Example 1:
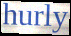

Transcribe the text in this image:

hurly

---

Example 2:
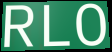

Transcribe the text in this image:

RLO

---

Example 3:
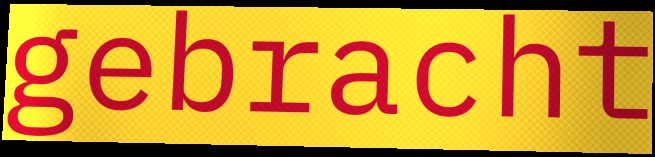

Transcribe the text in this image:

gebracht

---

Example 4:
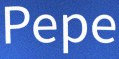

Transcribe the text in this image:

Pepe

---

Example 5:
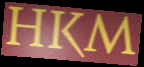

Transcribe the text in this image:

HKM